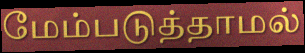
மேம்படுத்தாமல்